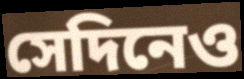
সেদিনেও